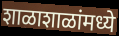
शाळाशाळांमध्ये